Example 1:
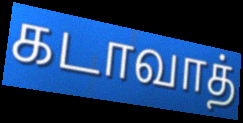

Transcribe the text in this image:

கடாவாத்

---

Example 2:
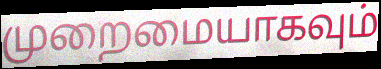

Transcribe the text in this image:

முறைமையாகவும்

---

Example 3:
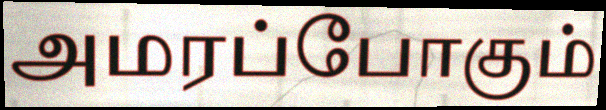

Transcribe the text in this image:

அமரப்போகும்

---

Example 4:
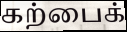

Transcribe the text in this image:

கற்பைக்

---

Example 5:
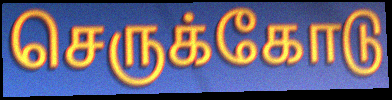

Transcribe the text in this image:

செருக்கோடு